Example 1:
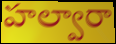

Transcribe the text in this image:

హల్వారా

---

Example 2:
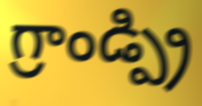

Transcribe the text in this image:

గ్రాండ్ప్రి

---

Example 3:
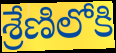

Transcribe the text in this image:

శ్రేణిలోకి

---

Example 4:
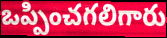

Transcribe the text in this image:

ఒప్పించగలిగారు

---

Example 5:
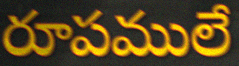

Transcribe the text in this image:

రూపములే